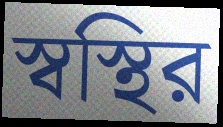
স্বস্থির